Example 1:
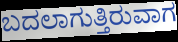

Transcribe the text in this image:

ಬದಲಾಗುತ್ತಿರುವಾಗ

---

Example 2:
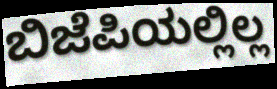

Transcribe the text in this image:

ಬಿಜೆಪಿಯಲ್ಲಿಲ್ಲ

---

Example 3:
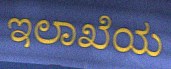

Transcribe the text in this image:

ಇಲಾಖೆಯ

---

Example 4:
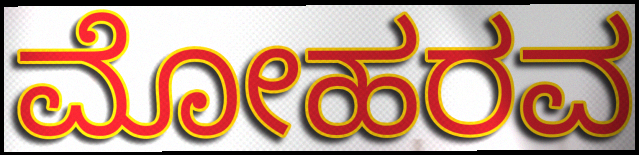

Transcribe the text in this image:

ಮೋಹರವ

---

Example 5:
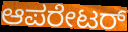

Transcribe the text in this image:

ಆಪರೇಟರ್